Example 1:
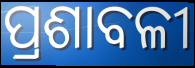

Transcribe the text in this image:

ପ୍ରଶାବଳୀ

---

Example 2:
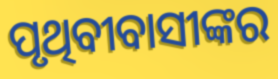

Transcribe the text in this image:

ପୃଥିବୀବାସୀଙ୍କର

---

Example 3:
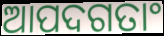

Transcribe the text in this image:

ଆପଦଗତାଂ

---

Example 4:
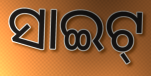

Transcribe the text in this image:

ସାଇଟ୍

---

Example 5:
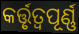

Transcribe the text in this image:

କର୍ତ୍ତୃତ୍ୱପୂର୍ଣ୍ଣ